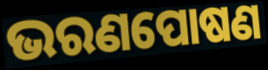
ଭରଣପୋଷଣ